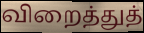
விறைத்துத்